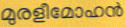
മുരളീമോഹൻ